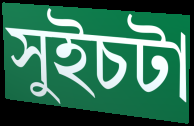
সুইচটা